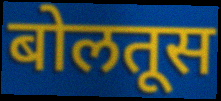
बोलतूस